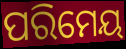
ପରିମେୟ